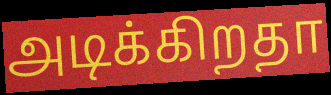
அடிக்கிறதா